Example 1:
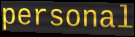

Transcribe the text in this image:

personal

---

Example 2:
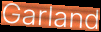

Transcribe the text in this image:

Garland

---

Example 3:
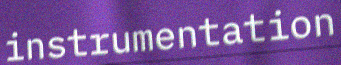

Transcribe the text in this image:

instrumentation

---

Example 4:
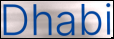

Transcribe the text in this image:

Dhabi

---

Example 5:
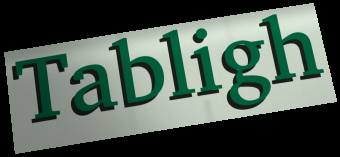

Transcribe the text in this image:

Tabligh